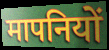
मापनियों